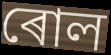
ৰোল